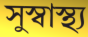
সুস্বাস্থ্য